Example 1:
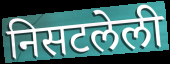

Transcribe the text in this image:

निसटलेली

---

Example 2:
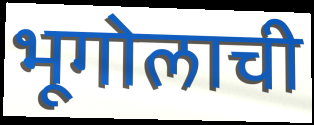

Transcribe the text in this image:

भूगोलाची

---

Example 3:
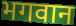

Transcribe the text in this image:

भगवान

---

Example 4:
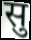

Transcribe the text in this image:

सु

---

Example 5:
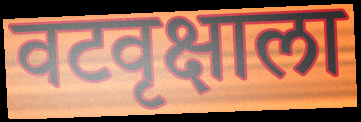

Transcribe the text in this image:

वटवृक्षाला